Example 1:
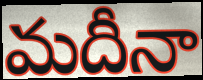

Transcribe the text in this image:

మదీనా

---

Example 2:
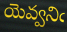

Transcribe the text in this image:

యెవ్వనిఁ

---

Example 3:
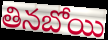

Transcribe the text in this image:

తినబోయి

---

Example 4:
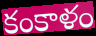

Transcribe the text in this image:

కంకాళం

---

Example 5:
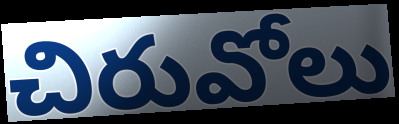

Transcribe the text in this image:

చిరువోలు